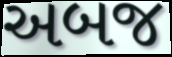
અબજ